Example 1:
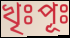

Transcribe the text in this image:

খৃঃপূঃ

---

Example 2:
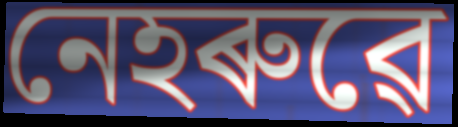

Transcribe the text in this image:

নেহৰুৱে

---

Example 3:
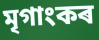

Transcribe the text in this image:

মৃগাংকৰ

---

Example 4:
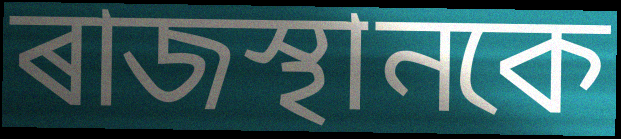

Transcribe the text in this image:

ৰাজস্থানকে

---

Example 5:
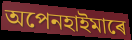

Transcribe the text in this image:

অপেনহাইমাৰে